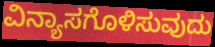
ವಿನ್ಯಾಸಗೊಳಿಸುವುದು